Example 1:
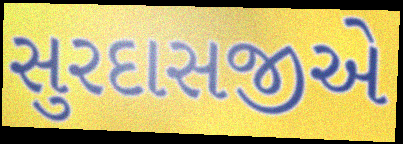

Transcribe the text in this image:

સુરદાસજીએ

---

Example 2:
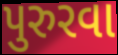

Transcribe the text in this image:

પુરુરવા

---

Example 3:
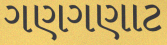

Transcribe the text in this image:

ગણગણાટ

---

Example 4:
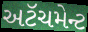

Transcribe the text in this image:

અટૅચમેન્ટ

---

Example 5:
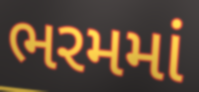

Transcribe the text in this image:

ભરમમાં